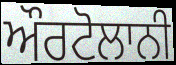
ਔਰਟੋਲਾਨੀ